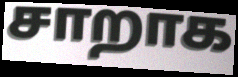
சாறாக